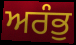
ਅਰੰਭੁ